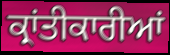
ਕ੍ਰਾਂਤੀਕਾਰੀਆਂ